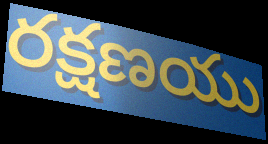
రక్షణయు